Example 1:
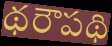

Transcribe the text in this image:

థరౌపథి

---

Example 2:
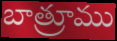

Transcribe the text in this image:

బాత్రూము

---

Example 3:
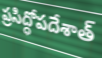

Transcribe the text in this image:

ప్రసిద్ధోపదేశాత్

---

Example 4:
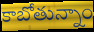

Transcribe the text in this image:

కాబోతున్నాం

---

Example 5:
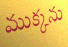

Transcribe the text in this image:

ముక్కను